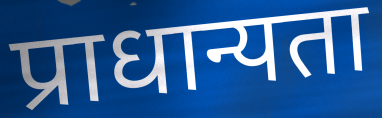
प्राधान्यता